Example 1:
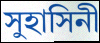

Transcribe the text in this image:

সুহাসিনী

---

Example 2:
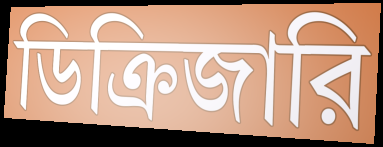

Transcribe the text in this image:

ডিক্রিজারি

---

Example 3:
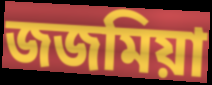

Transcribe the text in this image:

জজমিয়া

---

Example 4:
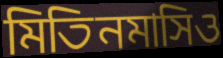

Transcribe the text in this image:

মিতিনমাসিও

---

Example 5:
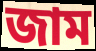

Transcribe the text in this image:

জাম